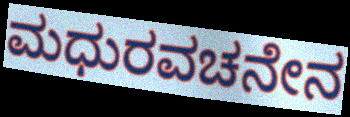
ಮಧುರವಚನೇನ